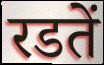
रडतें